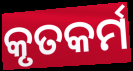
କୃତକର୍ମ